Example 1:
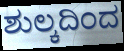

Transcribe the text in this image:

ಶುಲ್ಕದಿಂದ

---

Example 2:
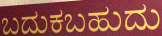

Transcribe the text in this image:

ಬದುಕಬಹುದು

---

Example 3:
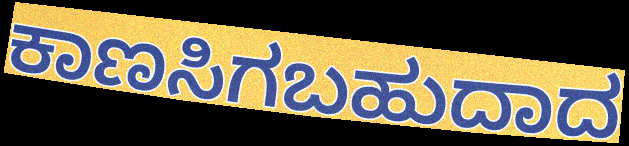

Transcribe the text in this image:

ಕಾಣಸಿಗಬಹುದಾದ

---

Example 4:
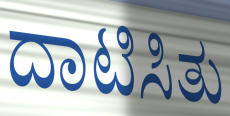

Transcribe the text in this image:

ದಾಟಿಸಿತು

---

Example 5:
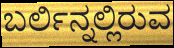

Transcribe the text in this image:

ಬರ್ಲಿನ್ನಲ್ಲಿರುವ